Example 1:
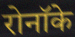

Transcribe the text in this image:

रोनॉके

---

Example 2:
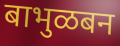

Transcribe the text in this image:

बाभुळबन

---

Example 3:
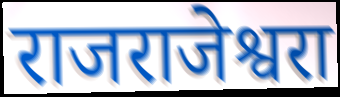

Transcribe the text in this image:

राजराजेश्वरा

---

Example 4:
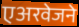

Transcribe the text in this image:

एअरवेजने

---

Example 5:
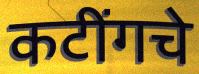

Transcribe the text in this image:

कटींगचे